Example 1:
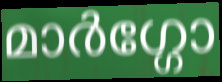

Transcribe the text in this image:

മാർഗ്ഗോ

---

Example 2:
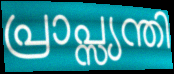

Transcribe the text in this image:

പ്രാപ്സ്യന്തി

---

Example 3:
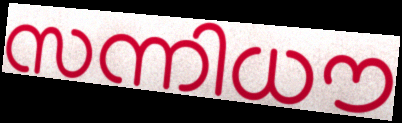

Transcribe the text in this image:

സന്നിധൗ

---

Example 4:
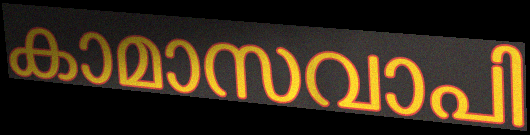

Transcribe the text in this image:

കാമാസവാപി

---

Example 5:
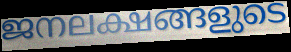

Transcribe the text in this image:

ജനലക്ഷങ്ങളുടെ